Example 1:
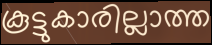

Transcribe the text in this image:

കൂട്ടുകാരില്ലാത്ത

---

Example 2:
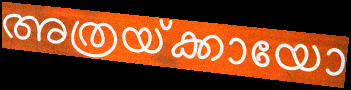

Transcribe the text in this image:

അത്രയ്‌ക്കായോ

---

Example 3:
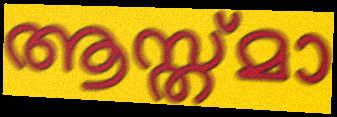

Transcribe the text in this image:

ആസ്ത്മാ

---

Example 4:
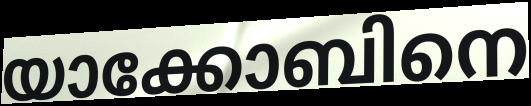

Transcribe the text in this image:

യാക്കോബിനെ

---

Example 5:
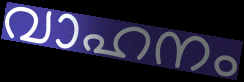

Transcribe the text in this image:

വാഹനം